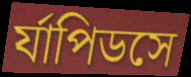
র্যাপিডসে